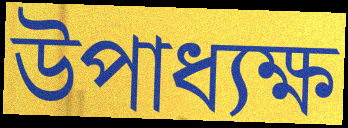
উপাধ্যক্ষ